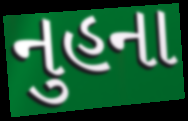
નુહના